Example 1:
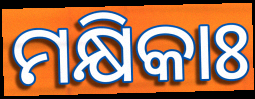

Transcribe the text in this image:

ମକ୍ଷିକାଃ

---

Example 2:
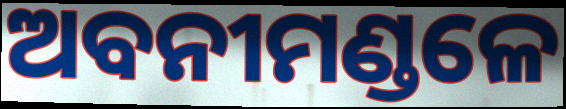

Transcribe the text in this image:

ଅବନୀମଣ୍ଡଳେ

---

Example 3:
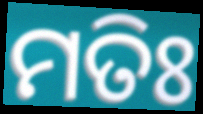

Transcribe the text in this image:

ମତିଃ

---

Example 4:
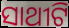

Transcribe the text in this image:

ସାଥୀଟି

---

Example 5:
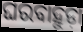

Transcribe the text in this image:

ଘରବାହୁଡ଼ା